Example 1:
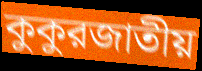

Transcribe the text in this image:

কুকুরজাতীয়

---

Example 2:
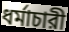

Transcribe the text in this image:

ধর্মাচারী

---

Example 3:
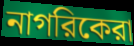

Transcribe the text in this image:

নাগরিকেরা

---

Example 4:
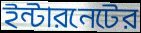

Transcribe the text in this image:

ইন্টারনেটের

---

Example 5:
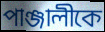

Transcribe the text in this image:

পাঞ্জালীকে